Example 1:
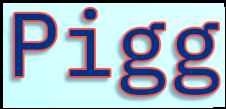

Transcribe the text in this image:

Pigg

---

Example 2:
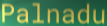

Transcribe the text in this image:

Palnadu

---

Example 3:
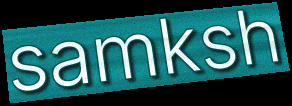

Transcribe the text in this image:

samksh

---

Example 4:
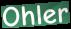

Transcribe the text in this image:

Ohler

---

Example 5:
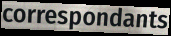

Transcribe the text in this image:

correspondants